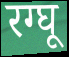
रग्घू